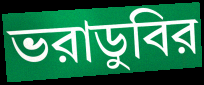
ভরাডুবির